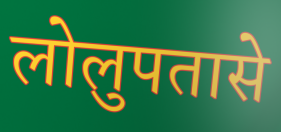
लोलुपतासे